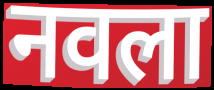
नवला